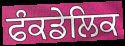
ਫੰਕਡੇਲਿਕ